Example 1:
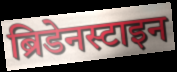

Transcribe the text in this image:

ब्रिडेनस्टाइन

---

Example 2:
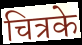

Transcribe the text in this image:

चित्रके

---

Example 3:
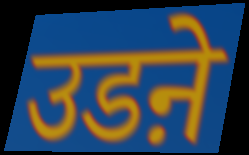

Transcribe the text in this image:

उडऩे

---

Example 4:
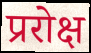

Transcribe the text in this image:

प्ररोक्ष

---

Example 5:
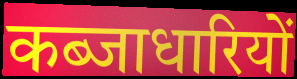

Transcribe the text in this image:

कब्जाधारियों